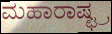
ಮಹಾರಾಷ್ಟ್ರ